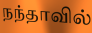
நந்தாவில்